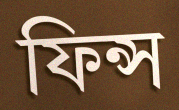
ফিন্স